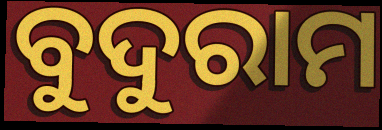
ବୁଦୁରାମ